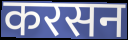
करसन